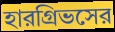
হারগ্রিভসের